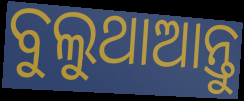
ବୁଲୁଥାଆନ୍ତୁ